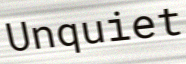
Unquiet